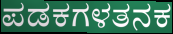
ಪಡಕಗಳತನಕ